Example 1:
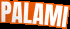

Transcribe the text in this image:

PALAMI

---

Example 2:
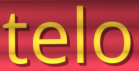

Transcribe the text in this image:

telo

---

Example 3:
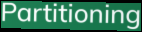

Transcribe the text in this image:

Partitioning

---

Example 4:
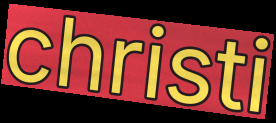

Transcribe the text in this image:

christi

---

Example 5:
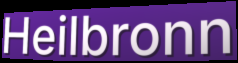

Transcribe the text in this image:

Heilbronn